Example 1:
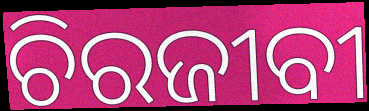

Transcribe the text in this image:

ଚିରଜୀବୀ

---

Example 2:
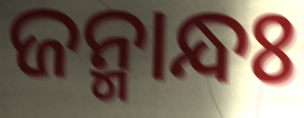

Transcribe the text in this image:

ଜନ୍ମାନ୍ଧଃ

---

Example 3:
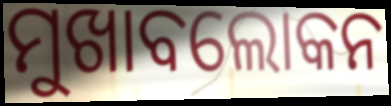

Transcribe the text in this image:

ମୁଖାବଲୋକନ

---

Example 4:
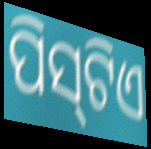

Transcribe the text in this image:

ପିସ୍‌ଟିଏ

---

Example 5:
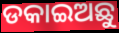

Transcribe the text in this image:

ଡକାଇଅଛୁ